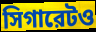
সিগারেটও